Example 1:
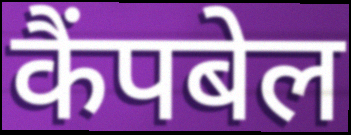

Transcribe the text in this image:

कैंपबेल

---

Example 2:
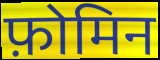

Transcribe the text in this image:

फ़ोमिन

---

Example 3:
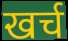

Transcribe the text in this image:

खर्च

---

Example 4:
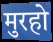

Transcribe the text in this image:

मुरहो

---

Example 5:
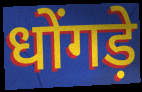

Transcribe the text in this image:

धोंगड़े